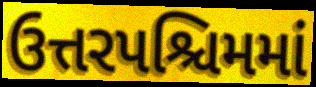
ઉત્તરપશ્ચિમમાં